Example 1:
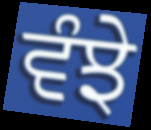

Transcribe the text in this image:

ਵੰਝੇ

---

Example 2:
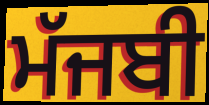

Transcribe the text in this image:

ਮੱਜਬੀ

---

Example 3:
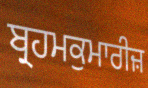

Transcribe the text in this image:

ਬ੍ਰਹਮਕੁਮਾਰੀਜ਼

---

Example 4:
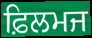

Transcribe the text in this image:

ਫ਼ਿਲਮਜ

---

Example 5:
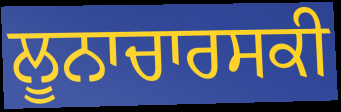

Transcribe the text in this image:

ਲੂਨਾਚਾਰਸਕੀ